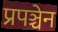
प्रपञ्चेन